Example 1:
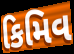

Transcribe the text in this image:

કિમિવ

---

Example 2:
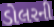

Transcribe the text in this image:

ડોલરની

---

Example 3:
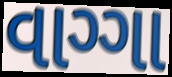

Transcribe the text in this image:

વાગ્ગા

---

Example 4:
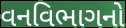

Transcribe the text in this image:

વનવિભાગનો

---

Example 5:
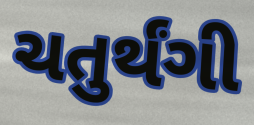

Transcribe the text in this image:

ચતુર્થંગી